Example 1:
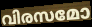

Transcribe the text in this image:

വിരസമോ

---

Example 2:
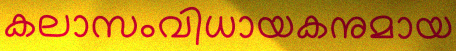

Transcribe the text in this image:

കലാസംവിധായകനുമായ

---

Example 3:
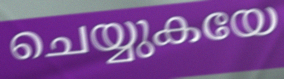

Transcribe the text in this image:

ചെയ്യുകയേ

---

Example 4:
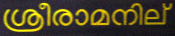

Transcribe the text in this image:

ശ്രീരാമനില്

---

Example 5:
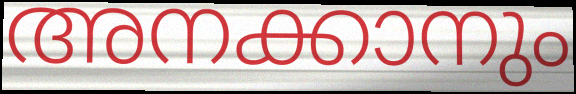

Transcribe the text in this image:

അനക്കാനും